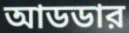
আডডার